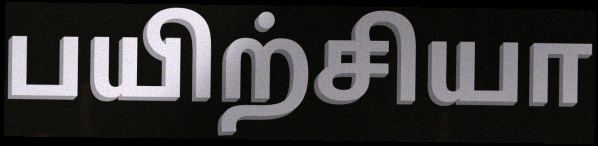
பயிற்சியா